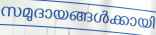
സമുദായങ്ങൾക്കായി